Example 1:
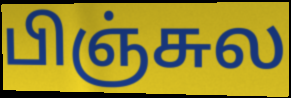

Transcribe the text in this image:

பிஞ்சுல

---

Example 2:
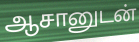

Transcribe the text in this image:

ஆசானுடன்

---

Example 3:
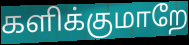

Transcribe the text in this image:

களிக்குமாறே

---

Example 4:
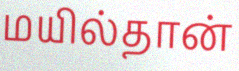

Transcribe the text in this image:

மயில்தான்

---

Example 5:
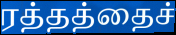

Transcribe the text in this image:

ரத்தத்தைச்